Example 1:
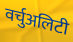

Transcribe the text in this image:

वर्चुअलिटी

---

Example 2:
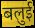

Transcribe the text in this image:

बलुई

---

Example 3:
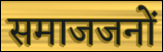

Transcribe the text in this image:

समाजजनों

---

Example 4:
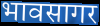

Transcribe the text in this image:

भावसागर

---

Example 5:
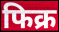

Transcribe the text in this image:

फिक्र